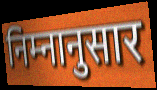
निम्नानुसार